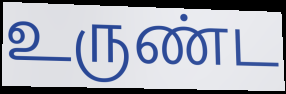
உருண்ட